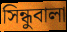
সিন্ধুবালা